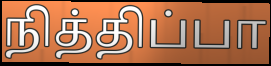
நித்திப்பா